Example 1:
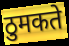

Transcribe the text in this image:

ठुमकते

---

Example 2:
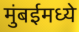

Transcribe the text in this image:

मुंबईमध्ये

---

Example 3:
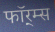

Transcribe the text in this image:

फॉर्म्स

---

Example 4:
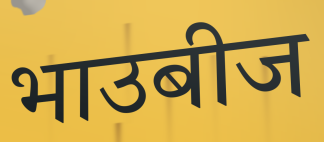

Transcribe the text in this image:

भाउबीज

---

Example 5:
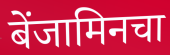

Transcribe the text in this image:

बेंजामिनचा